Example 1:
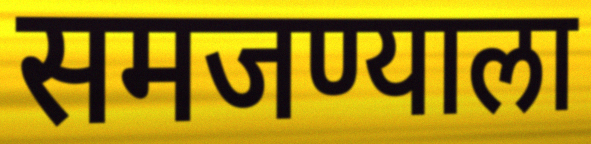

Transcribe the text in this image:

समजण्याला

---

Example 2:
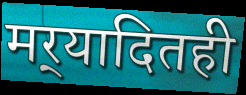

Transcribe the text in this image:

मर्यादितही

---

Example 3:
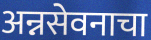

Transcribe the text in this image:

अन्नसेवनाचा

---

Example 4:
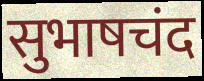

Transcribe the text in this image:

सुभाषचंद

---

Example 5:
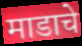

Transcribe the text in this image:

माडाचे